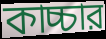
কাচ্চার